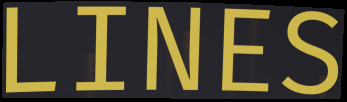
LINES